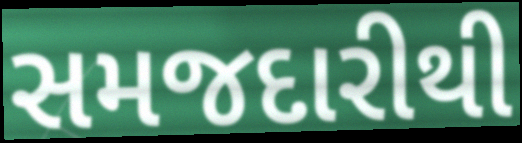
સમજદારીથી